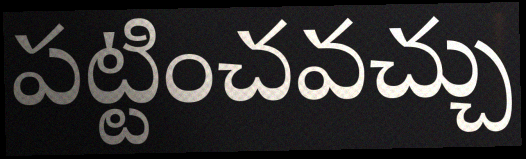
పట్టించవచ్చు